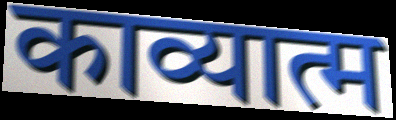
काव्यात्म